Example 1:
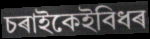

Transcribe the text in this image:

চৰাইকেইবিধৰ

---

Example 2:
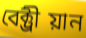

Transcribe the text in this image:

বেক্ট্ৰীয়ান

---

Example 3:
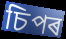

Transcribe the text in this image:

চিপৰ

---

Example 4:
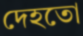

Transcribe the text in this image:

দেহতো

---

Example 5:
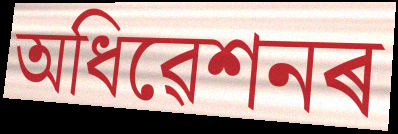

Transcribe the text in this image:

অধিৱেশনৰ